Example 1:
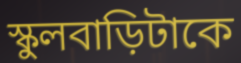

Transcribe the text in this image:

স্কুলবাড়িটাকে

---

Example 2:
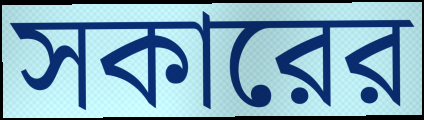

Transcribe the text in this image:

সকারের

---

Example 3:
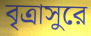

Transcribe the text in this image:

বৃত্রাসুরে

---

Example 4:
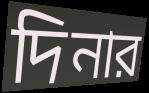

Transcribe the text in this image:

দিনার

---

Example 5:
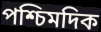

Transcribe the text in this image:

পশ্চিমদিক